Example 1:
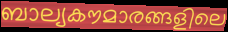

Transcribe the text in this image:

ബാല്യകൗമാരങ്ങളിലെ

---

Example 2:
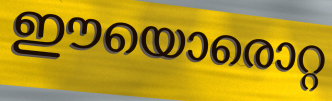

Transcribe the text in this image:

ഈയൊരൊറ്റ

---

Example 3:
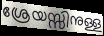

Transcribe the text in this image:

ശ്രേയസ്സിനുള്ള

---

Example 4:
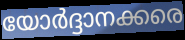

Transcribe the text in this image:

യോർദ്ദാനക്കരെ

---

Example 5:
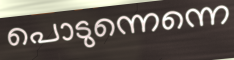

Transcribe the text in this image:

പൊടുന്നെന്നെ